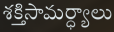
శక్తిసామర్ధ్యాలు